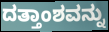
ದತ್ತಾಂಶವನ್ನು